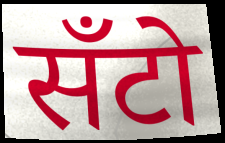
सँटो